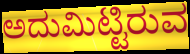
ಅದುಮಿಟ್ಟಿರುವ